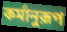
কর্মানুরূপ